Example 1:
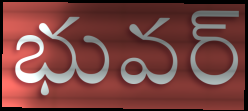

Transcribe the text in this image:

భువర్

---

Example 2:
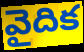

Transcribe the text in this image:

వైదిక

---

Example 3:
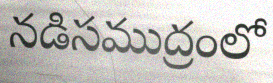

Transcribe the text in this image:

నడిసముద్రంలో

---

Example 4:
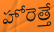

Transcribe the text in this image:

హోరెత్తే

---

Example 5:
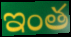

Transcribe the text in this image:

ఇంత